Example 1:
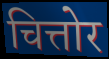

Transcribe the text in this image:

चित्तोर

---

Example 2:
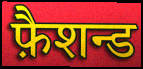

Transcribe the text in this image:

फ़ैशन्ड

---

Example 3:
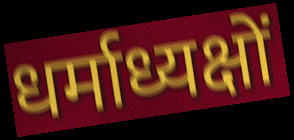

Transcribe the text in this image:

धर्माध्यक्षों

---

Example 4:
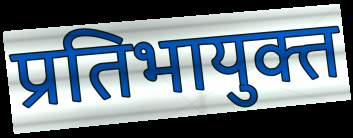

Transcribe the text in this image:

प्रतिभायुक्त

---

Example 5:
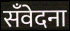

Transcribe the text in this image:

सँवेदना